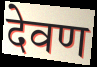
देवण